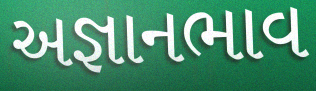
અજ્ઞાનભાવ